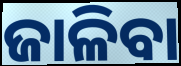
ଜାଳିବା